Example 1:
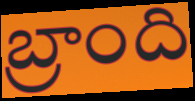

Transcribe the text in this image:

బ్రాంది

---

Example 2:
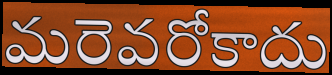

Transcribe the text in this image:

మరెవరోకాదు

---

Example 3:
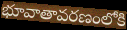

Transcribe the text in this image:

భూవాతావరణంలోకి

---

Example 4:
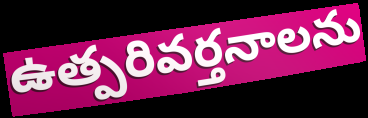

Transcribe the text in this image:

ఉత్పరివర్తనాలను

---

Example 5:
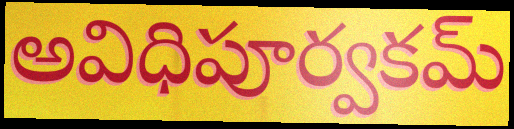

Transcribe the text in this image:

అవిధిపూర్వకమ్